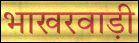
भाखरवाड़ी